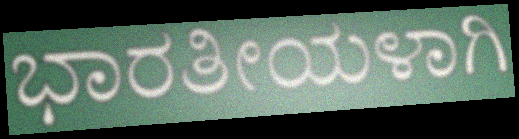
ಭಾರತೀಯಳಾಗಿ